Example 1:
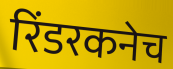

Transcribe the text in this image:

रिंडरकनेच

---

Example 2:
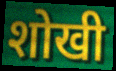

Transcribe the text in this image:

शोखी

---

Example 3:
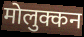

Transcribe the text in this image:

मोलुक्कन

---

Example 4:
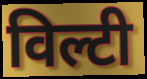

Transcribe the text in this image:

विल्टी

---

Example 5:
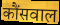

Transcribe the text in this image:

कौंसवाल